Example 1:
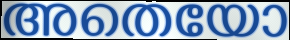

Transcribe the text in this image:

അതെയോ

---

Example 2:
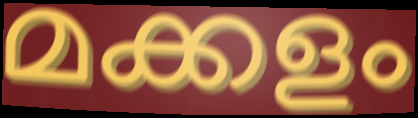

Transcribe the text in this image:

മക്കളം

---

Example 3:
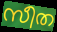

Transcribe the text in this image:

സീത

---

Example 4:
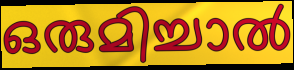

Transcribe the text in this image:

ഒരുമിച്ചാൽ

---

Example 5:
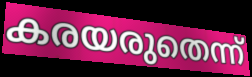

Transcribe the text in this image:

കരയരുതെന്ന്